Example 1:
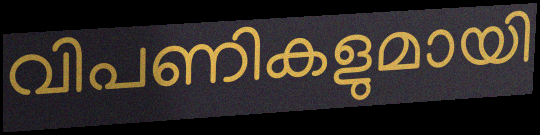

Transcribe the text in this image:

വിപണികളുമായി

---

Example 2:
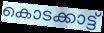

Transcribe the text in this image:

കൊടക്കാട്ട്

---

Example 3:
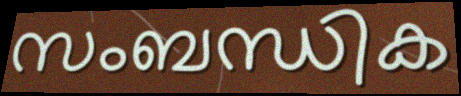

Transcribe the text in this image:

സംബന്ധിക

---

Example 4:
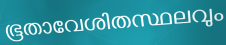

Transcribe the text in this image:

ഭൂതാവേശിതസ്ഥലവും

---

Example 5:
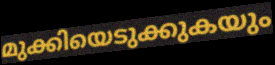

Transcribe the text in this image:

മുക്കിയെടുക്കുകയും